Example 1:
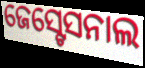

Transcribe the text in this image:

ଜେସ୍ଟେସନାଲ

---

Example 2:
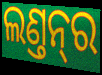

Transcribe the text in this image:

ଲଣ୍ତନ୍‌ର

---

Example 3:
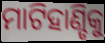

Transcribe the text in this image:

ମାଟିହାଣ୍ଡିକୁ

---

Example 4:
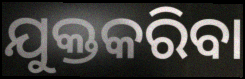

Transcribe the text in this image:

ଯୁକ୍ତକରିବା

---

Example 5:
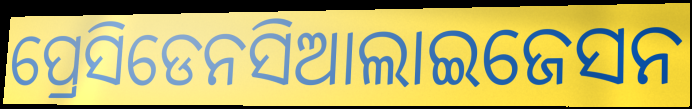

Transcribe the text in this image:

ପ୍ରେସିଡେନସିଆଲାଇଜେସନ